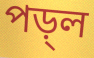
পড়্ল